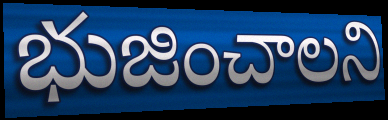
భుజించాలని